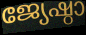
ജ്യേഷ്ഠാ